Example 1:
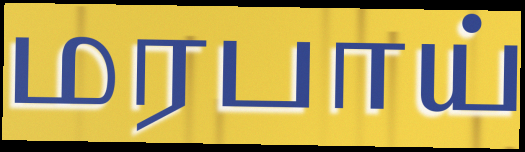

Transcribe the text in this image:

மரபாய்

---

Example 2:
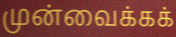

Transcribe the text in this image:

முன்வைக்கக்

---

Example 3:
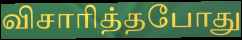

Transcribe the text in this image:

விசாரித்தபோது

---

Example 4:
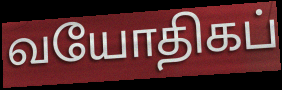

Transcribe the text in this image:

வயோதிகப்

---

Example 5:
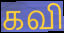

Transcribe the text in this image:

கவி